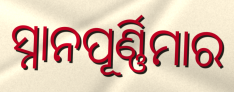
ସ୍ନାନପୂର୍ଣ୍ଣିମାର